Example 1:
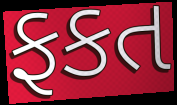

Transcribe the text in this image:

ફકત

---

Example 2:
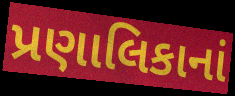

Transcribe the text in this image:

પ્રણાલિકાનાં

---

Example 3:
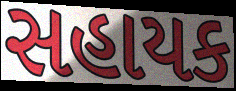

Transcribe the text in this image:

સહાયક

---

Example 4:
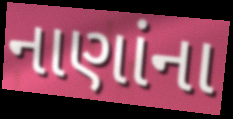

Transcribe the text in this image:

નાણાંના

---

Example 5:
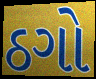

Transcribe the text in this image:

ઠગો